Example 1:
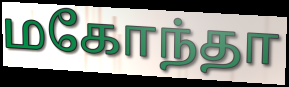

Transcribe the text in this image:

மகோந்தா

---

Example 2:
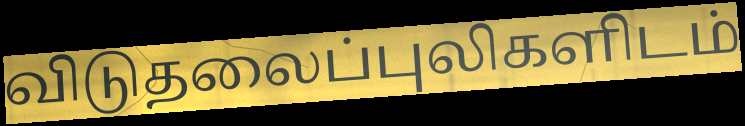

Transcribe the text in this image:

விடுதலைப்புலிகளிடம்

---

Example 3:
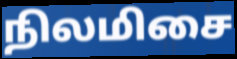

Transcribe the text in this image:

நிலமிசை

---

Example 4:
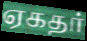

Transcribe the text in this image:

ஏகதர்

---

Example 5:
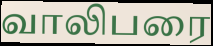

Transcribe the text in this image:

வாலிபரை